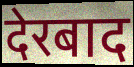
देरबाद